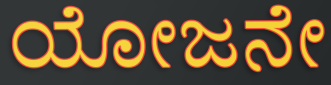
ಯೋಜನೇ